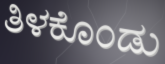
ತಿಳಕೊಂಡು